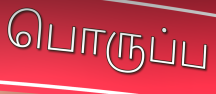
பொருப்ப